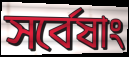
সর্বেষাং